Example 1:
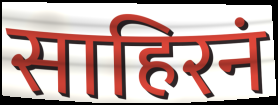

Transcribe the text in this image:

साहिरनं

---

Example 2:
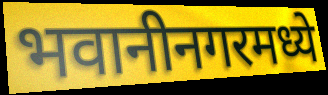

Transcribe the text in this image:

भवानीनगरमध्ये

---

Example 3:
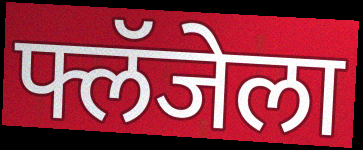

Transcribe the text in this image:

फ्लॅजेला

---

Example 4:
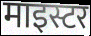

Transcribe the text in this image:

माइस्टर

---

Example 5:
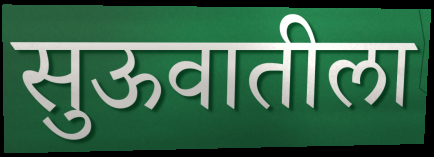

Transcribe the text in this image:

सुऊवातीला